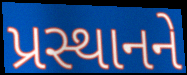
પ્રસ્થાનને